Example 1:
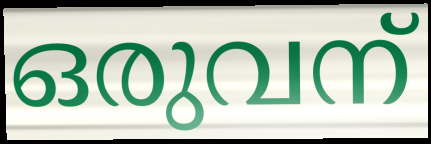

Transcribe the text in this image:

ഒരുവന്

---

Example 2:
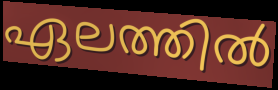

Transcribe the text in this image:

ഏലത്തിൽ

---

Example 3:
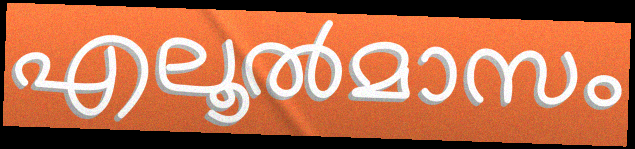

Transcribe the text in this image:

എലൂൽമാസം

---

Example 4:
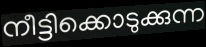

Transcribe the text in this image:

നീട്ടിക്കൊടുക്കുന്ന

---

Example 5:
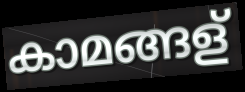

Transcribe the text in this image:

കാമങ്ങള്